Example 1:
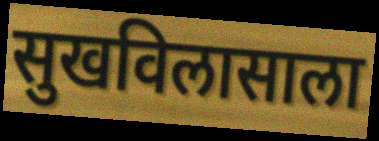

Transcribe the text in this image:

सुखविलासाला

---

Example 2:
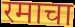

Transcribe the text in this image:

रमाचा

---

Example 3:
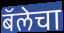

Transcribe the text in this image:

बॅलेचा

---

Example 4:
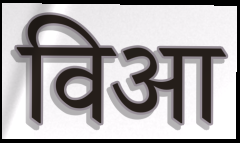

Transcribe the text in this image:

विआ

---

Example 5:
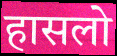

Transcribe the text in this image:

हासलो